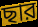
ছার